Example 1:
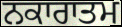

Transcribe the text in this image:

ਨਕਾਰਾਤਮ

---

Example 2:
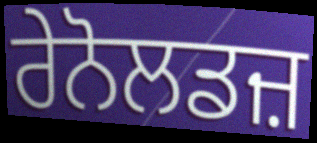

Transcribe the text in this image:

ਰੇਨੋਲਡਜ਼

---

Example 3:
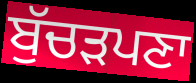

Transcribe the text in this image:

ਬੁੱਚੜਪਣਾ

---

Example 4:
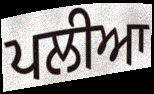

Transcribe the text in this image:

ਪਲੀਆ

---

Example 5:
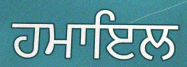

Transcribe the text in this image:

ਹਮਾਇਲ